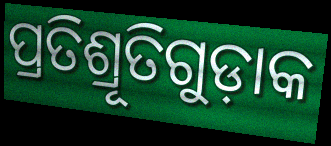
ପ୍ରତିଶ୍ରୂତିଗୁଡ଼ାକ